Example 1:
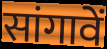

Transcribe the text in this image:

सांगावें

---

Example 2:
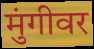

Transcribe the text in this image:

मुंगीवर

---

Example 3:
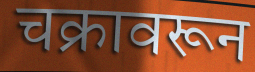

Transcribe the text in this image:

चक्रावरून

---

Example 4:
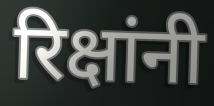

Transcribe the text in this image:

रिक्षांनी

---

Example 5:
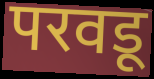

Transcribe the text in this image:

परवडू